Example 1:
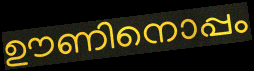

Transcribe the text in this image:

ഊണിനൊപ്പം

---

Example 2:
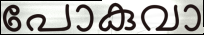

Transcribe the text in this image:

പോകുവാ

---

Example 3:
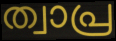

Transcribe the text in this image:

ത്വാപ്ര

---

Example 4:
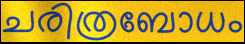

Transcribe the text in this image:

ചരിത്രബോധം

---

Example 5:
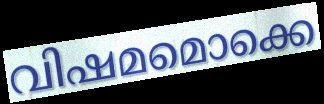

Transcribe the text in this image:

വിഷമമൊക്കെ